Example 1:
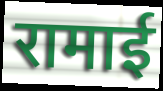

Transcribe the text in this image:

रामाई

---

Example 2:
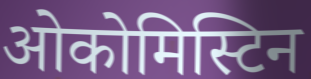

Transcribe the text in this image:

ओकोमिस्टिन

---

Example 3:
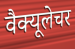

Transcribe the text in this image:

वैक्यूलेचर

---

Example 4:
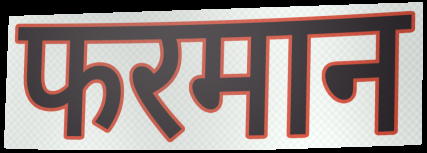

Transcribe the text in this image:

फरमान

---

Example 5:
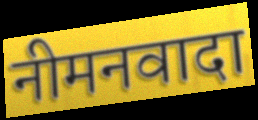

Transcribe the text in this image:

नीमनवादा